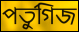
পর্তুগিজ